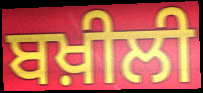
ਬਖ਼ੀਲੀ